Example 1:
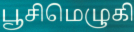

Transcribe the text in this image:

பூசிமெழுகி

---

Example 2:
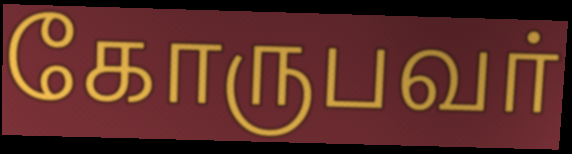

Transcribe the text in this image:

கோருபவர்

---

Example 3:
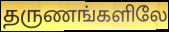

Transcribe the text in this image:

தருணங்களிலே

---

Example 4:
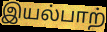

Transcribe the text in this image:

இயல்பாற்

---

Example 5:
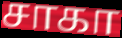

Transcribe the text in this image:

சாகா